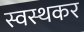
स्वस्थकर